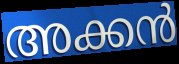
അക്കൻ